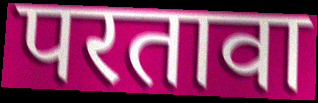
परतावा